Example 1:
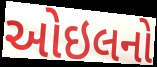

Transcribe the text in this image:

ઓઇલનો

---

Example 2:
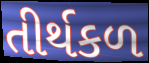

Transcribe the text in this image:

તીર્થકળ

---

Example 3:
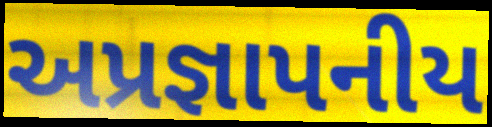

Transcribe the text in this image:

અપ્રજ્ઞાપનીય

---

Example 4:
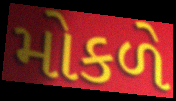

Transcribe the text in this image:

મોકળે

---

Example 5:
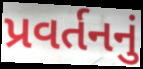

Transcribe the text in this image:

પ્રવર્તનનું